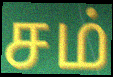
சம்